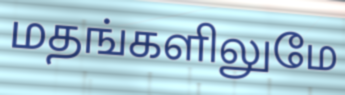
மதங்களிலுமே